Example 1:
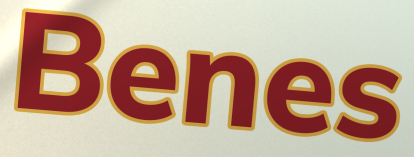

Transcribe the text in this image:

Benes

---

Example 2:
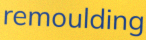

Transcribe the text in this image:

remoulding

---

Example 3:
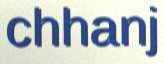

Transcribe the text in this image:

chhanj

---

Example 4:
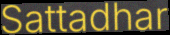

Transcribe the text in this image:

Sattadhar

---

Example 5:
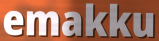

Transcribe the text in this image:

emakku